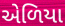
એળિયા